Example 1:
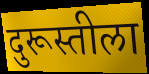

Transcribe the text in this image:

दुरूस्तीला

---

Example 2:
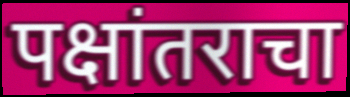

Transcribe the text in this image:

पक्षांतराचा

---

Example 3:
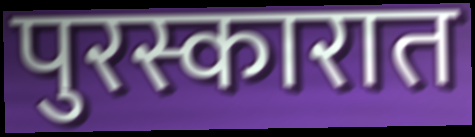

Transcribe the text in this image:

पुरस्कारात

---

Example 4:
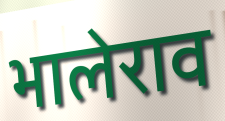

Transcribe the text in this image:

भालेराव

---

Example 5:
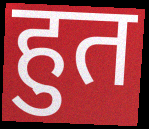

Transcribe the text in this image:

हुत